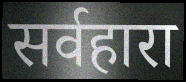
सर्वहारा